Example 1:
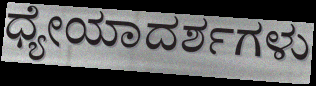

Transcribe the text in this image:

ಧ್ಯೇಯಾದರ್ಶಗಳು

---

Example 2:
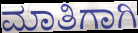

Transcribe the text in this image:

ಮಾತಿಗಾಗಿ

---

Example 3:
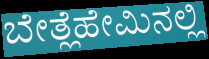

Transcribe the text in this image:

ಬೇತ್ಲೆಹೇಮಿನಲ್ಲಿ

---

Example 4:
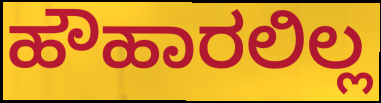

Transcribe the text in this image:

ಹೌಹಾರಲಿಲ್ಲ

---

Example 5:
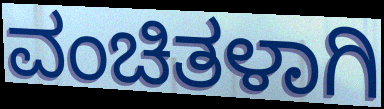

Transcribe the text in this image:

ವಂಚಿತಳಾಗಿ